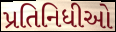
પ્રતિનિધીઓ